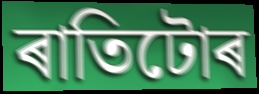
ৰাতিটোৰ